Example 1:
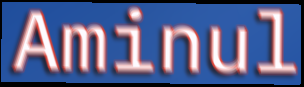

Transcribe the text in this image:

Aminul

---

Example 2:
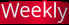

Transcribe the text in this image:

Weekly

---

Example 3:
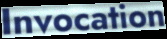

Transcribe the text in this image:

Invocation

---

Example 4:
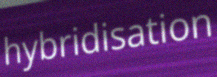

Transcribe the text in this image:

hybridisation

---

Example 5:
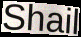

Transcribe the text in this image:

Shail